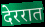
देररात